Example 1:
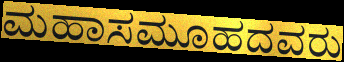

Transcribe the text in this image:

ಮಹಾಸಮೂಹದವರು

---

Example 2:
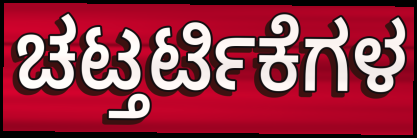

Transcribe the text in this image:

ಚಟ್ತರ್ಟಿಕೆಗಳ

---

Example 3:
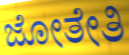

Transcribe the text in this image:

ಜೋತೇತಿ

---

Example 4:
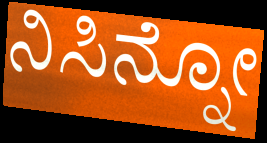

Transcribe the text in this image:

ನಿಸಿನ್ನೋ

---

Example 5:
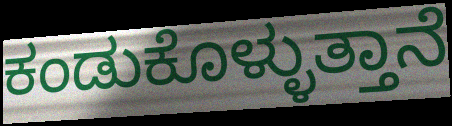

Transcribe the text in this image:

ಕಂಡುಕೊಳ್ಳುತ್ತಾನೆ